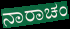
ನಾರಾಚಂ